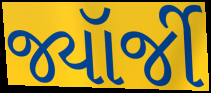
જ્યૉર્જી